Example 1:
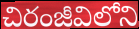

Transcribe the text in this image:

చిరంజీవిలోని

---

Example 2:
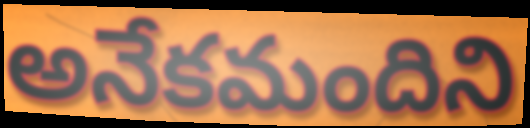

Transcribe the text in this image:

అనేకమందిని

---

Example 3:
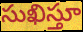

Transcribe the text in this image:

సుఖిస్తూ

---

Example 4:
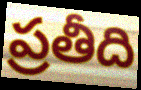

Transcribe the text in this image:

ప్రతీది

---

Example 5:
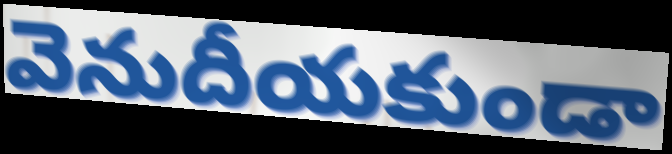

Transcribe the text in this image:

వెనుదీయకుండా